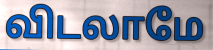
விடலாமே